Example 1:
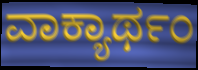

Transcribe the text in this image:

ವಾಕ್ಯಾರ್ಥಂ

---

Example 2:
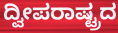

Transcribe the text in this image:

ದ್ವೀಪರಾಷ್ಟ್ರದ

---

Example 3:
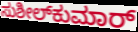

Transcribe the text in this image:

ಸುಶೀಲ್‌ಕುಮಾರ್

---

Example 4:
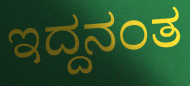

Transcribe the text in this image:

ಇದ್ದನಂತ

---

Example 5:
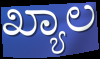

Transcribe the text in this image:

ಖ್ಯಾಲ